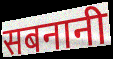
सबनानी